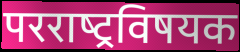
परराष्ट्रविषयक